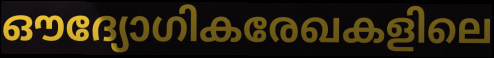
ഔദ്യോഗികരേഖകളിലെ